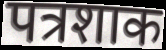
पत्रशाक